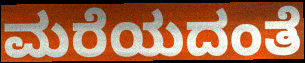
ಮರೆಯದಂತೆ